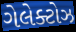
ગેલેક્ટોઝ